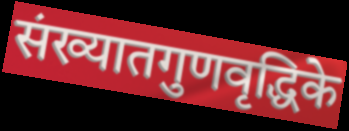
संख्यातगुणवृद्धिके